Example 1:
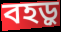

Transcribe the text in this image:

বহড়ু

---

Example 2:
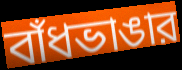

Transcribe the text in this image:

বাঁধভাঙার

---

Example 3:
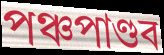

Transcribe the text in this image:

পঞ্চপাণ্ডব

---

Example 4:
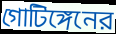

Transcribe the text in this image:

গোটিঙ্গেনের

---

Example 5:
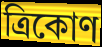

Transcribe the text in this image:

ত্রিকোণ